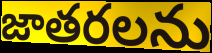
జాతరలను